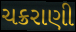
ચક્રરાણી